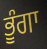
ਭੂੰਗਾ